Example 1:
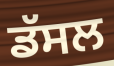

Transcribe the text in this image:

ਡੱਸਲ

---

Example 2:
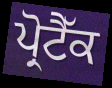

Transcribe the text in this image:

ਪ੍ਰੋਟੈੱਕ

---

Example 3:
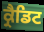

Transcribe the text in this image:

ਕ੍ਰੈਡਿਟ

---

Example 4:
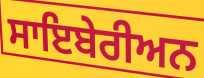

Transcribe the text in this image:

ਸਾਇਬੇਰੀਅਨ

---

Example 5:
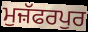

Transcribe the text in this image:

ਮੁਜ਼ੱਫਰਪੁਰ